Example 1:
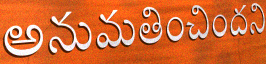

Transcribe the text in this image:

అనుమతించిందని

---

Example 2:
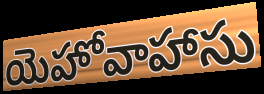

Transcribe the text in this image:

యెహోవాహాసు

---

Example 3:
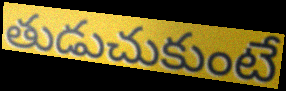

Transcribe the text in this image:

తుడుచుకుంటే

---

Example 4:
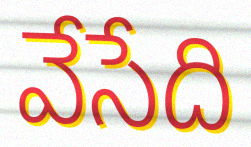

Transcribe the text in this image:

వేసేది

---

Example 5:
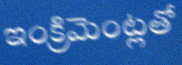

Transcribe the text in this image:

ఇంక్రిమెంట్లతో